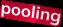
pooling